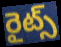
రైట్స్